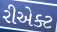
રીએક્ટ